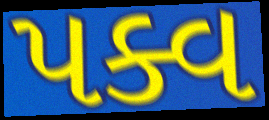
પક્વ